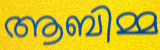
ആബിമ്മ